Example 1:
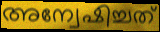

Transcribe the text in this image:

അന്വേഷിച്ചത്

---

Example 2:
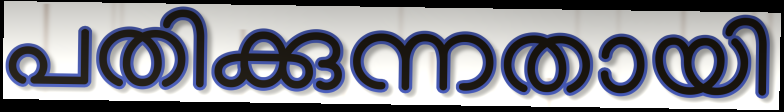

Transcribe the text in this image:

പതിക്കുന്നതായി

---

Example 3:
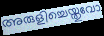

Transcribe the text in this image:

അരുളിച്ചെയ്തുവോ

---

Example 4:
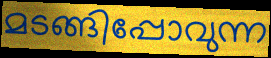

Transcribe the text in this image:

മടങ്ങിപ്പോവുന്ന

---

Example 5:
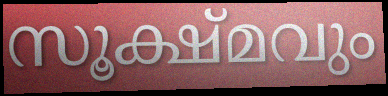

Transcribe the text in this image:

സൂക്ഷ്മവും